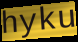
hyku